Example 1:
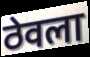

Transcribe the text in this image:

ठेवला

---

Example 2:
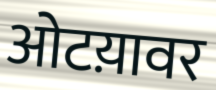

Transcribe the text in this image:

ओटय़ावर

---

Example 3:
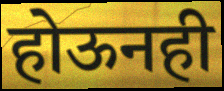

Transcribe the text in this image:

होऊनही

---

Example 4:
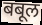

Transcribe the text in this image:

बबूल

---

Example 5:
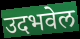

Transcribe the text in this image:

उदभवेल